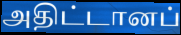
அதிட்டானப்